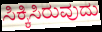
ಸಿಕ್ಕಿಸಿರುವುದು